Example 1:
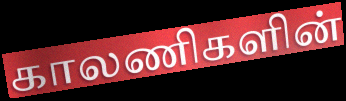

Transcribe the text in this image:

காலணிகளின்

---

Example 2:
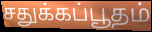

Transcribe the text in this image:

சதுக்கப்பூதம்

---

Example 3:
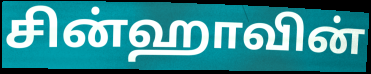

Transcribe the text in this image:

சின்ஹாவின்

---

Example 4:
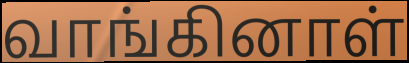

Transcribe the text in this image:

வாங்கினாள்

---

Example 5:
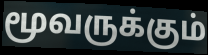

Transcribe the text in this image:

மூவருக்கும்